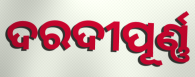
ଦରଦୀପୂର୍ଣ୍ଣ